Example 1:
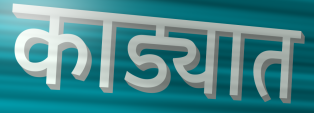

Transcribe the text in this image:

काड्यात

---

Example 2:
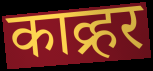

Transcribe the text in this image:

काव्र्हर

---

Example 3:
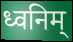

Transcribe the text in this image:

ध्वनिम्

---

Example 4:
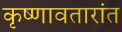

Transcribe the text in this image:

कृष्णावतारांत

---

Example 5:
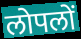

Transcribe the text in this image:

लोपलों